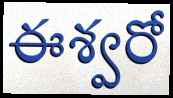
ఈశ్వరో